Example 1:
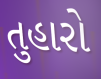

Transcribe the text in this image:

તુહારો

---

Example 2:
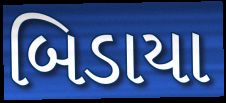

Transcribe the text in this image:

બિડાયા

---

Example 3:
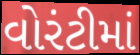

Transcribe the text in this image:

વોરંટીમાં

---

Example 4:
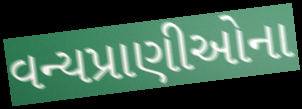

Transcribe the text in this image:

વન્યપ્રાણીઓના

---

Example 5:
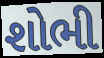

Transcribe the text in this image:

શોભી